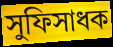
সুফিসাধক